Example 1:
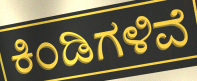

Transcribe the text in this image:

ಕಿಂಡಿಗಳಿವೆ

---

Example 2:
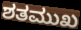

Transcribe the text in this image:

ಶತಮುಖ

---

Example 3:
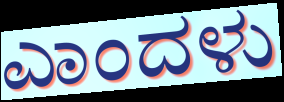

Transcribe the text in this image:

ಎಾಂದಳು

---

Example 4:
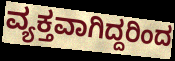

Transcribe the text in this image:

ವ್ಯಕ್ತವಾಗಿದ್ದರಿಂದ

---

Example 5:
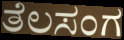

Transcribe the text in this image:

ತೆಲಸಂಗ